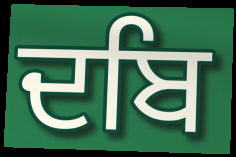
ਦਬਿ